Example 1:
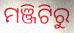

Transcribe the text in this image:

ମଞ୍ଜିଟିରୁ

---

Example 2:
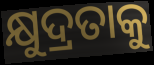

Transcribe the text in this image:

କ୍ଷୁଦ୍ରତାକୁ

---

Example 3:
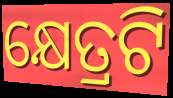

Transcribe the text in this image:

କ୍ଷେତ୍ରଟି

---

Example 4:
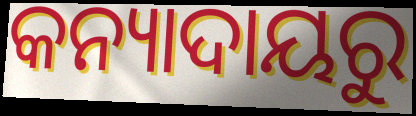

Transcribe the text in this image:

କନ୍ୟାଦାୟରୁ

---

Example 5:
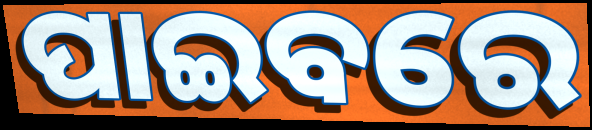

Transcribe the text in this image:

ପାଇବରେ